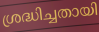
ശ്രദ്ധിച്ചതായി